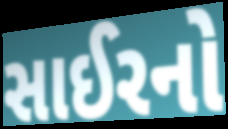
સાઈરનો